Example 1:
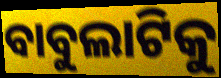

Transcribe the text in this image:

ବାବୁଲାଟିକୁ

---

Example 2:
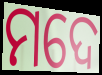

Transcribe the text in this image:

ମଦେ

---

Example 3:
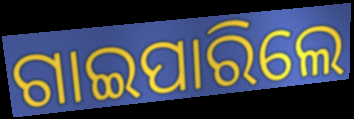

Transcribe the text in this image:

ଗାଇପାରିଲେ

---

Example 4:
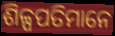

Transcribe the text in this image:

ଶିଳ୍ପପତିମାନେ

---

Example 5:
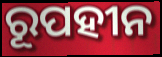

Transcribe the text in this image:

ରୂପହୀନ